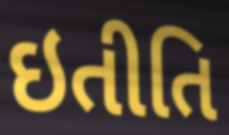
ઇતીતિ